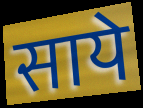
साये